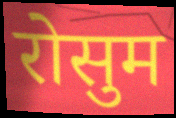
रोसुम